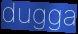
dugga